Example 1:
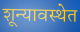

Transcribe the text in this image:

शून्यावस्थेत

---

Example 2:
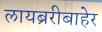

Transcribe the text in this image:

लायब्ररीबाहेर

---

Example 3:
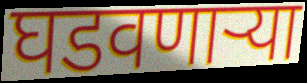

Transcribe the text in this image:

घडवणार्‍या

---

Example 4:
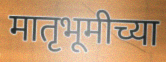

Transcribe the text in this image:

मातृभूमीच्या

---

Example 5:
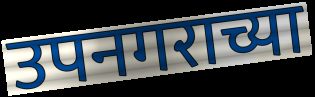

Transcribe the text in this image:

उपनगराच्या